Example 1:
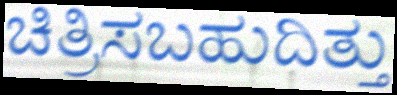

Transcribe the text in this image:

ಚಿತ್ರಿಸಬಹುದಿತ್ತು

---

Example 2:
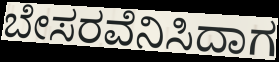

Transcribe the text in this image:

ಬೇಸರವೆನಿಸಿದಾಗ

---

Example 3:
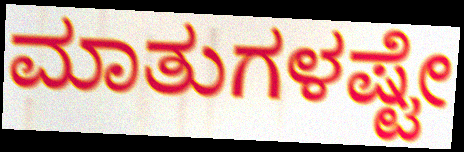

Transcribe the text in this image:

ಮಾತುಗಳಷ್ಟೇ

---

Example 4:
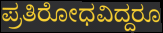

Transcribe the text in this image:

ಪ್ರತಿರೋಧವಿದ್ದರೂ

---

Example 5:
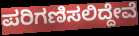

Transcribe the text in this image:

ಪರಿಗಣಿಸಲಿದ್ದೇವೆ